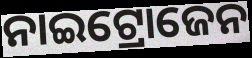
ନାଇଟ୍ରୋଜେନ